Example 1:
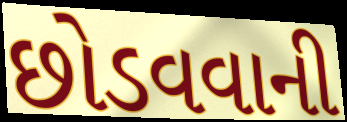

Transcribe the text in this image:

છોડવવાની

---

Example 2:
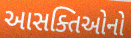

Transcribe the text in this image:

આસક્તિઓનો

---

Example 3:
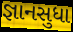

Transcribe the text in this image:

જ્ઞાનસુધા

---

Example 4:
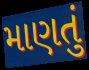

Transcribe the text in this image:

માણતું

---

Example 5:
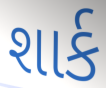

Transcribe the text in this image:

શાર્ક